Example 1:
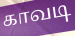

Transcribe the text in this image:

காவடி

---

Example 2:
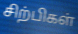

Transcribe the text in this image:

சிற்பிகள்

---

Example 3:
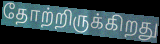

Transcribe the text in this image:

தோற்றிருக்கிறது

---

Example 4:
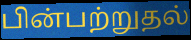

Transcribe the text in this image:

பின்பற்றுதல்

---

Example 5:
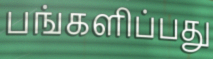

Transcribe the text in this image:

பங்களிப்பது